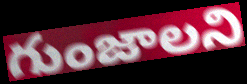
గుంజాలని